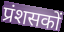
प्रंशसकों